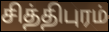
சித்திபுரம்